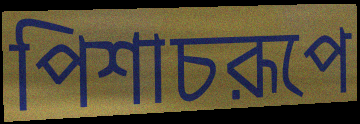
পিশাচরূপে